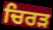
ਚਿਰੜ